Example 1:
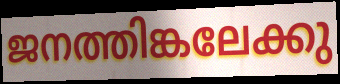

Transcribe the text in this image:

ജനത്തിങ്കലേക്കു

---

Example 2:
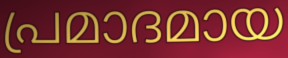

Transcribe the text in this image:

പ്രമാദമായ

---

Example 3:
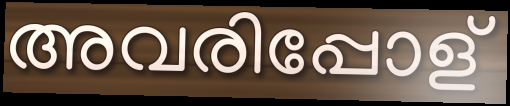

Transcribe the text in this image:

അവരിപ്പോള്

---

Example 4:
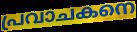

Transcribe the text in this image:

പ്രവാചകനെ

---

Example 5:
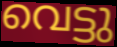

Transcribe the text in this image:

വെട്ടു